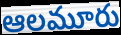
ఆలమూరు